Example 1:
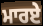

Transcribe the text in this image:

ਮਾਰਏ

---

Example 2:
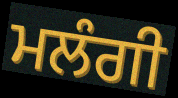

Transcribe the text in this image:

ਮਲੰਗੀ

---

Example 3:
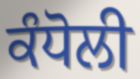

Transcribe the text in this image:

ਕੰਧੋਲੀ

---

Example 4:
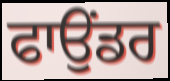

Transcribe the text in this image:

ਫਾਉਂਡਰ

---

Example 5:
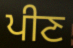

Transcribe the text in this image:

ਪੀਣ